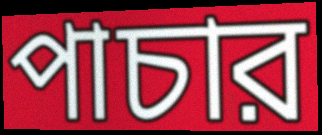
পাচার